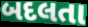
બદલતા